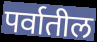
पर्वातील